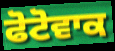
ਫੋਟੋਵਾਕ